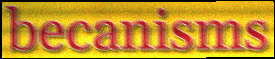
becanisms